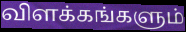
விளக்கங்களும்